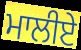
ਮਾਲੀਏ